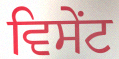
ਵਿਸੇਂਟ